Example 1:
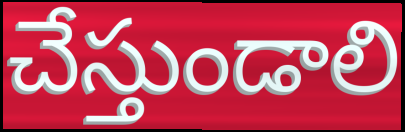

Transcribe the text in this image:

చేస్తుండాలి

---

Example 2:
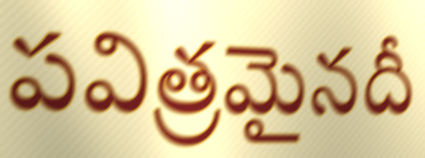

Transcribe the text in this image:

పవిత్రమైనదీ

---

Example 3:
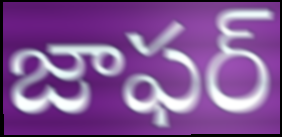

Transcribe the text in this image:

జాఫర్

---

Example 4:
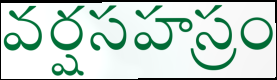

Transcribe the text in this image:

వర్షసహస్రం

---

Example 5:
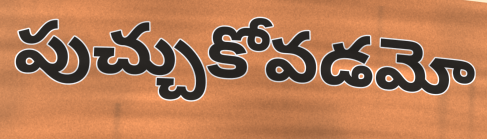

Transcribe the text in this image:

పుచ్చుకోవడమో